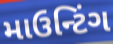
માઉન્ટિંગ